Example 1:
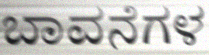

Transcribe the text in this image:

ಬಾವನೆಗಳ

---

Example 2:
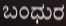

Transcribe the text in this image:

ಬಂಧುರ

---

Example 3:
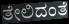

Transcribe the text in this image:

ತೇಲಿದಂತೆ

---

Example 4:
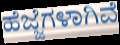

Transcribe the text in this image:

ಹೆಜ್ಜೆಗಳಾಗಿವೆ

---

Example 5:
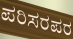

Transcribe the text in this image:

ಪರಿಸರಪರ